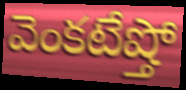
వెంకటేష్తో